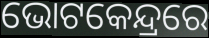
ଭୋଟକେନ୍ଦ୍ରରେ